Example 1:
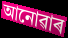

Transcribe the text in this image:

আনোৱাৰ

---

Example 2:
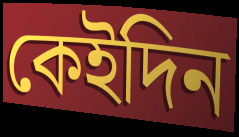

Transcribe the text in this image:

কেইদিন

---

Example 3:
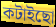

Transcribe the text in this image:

কটাইছো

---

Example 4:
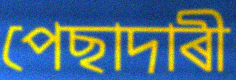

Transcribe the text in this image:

পেছাদাৰী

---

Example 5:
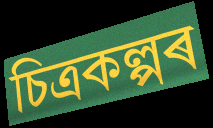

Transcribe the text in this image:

চিত্ৰকল্পৰ